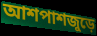
আশপাশজুড়ে